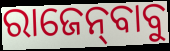
ରାଜେନ୍‌ବାବୁ